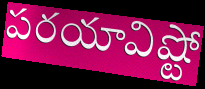
పరయావిష్టో